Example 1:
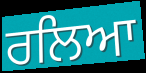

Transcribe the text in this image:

ਰਲਿਆ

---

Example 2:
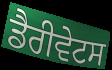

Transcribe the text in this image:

ਡੈਰੀਵੇਟਸ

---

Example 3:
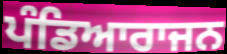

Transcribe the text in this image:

ਪੰਡਿਆਰਾਜਨ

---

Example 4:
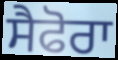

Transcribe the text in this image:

ਸੈਫੋਰਾ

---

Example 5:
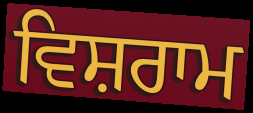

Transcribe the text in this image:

ਵਿਸ਼ਰਾਮ